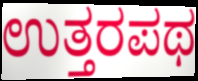
ಉತ್ತರಪಥ